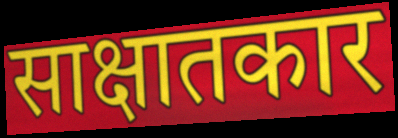
साक्षातकार